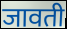
जावती